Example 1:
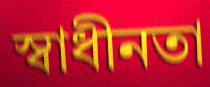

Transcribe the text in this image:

স্বাধীনতা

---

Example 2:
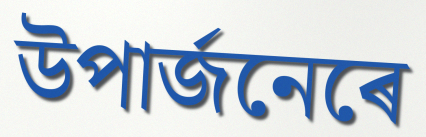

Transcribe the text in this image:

উপাৰ্জনেৰে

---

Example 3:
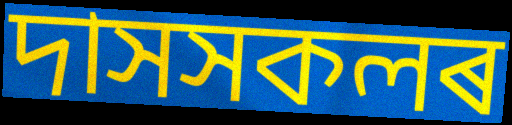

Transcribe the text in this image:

দাসসকলৰ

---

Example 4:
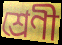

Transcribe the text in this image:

শ্ৰেণী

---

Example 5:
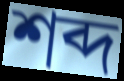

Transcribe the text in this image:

শব্দ